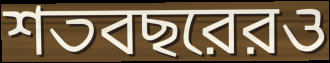
শতবছরেরও